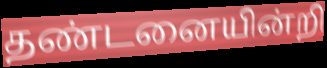
தண்டனையின்றி